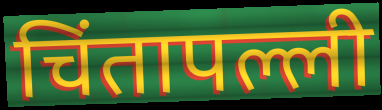
चिंतापल्ली